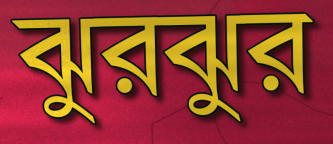
ঝুরঝুর